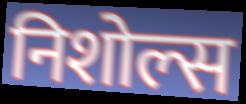
निशोल्स